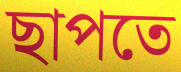
ছাপতে